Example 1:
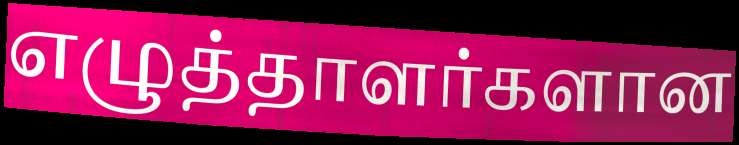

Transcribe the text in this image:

எழுத்தாளர்களான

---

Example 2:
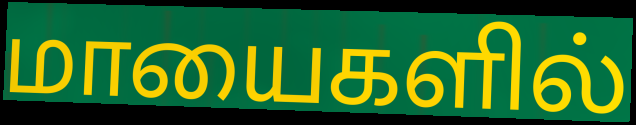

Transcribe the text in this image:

மாயைகளில்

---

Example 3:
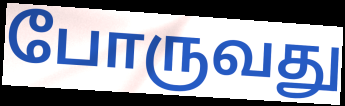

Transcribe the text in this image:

போருவது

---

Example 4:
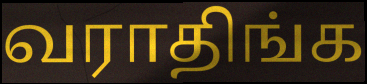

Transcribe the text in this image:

வராதிங்க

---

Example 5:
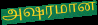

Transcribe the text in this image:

அஷரமான